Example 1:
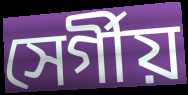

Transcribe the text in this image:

সের্গীয়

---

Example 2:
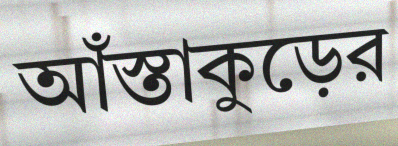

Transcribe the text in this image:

আঁস্তাকুড়ের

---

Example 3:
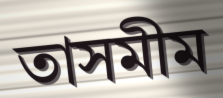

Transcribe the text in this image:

তাসমীম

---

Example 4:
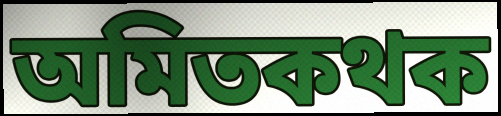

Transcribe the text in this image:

অমিতকথক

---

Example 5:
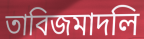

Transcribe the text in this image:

তাবিজমাদলি